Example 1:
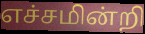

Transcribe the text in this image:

எச்சமின்றி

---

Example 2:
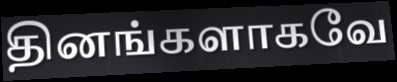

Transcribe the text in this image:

தினங்களாகவே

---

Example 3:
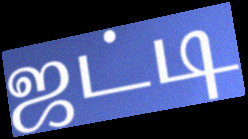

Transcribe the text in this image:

ஜட்டி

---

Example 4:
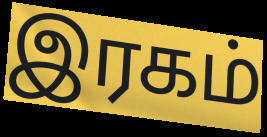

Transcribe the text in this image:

இரகம்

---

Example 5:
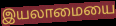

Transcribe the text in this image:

இயலாமையை